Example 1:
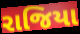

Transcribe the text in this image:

રાજિયા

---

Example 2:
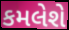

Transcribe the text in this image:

કમલેશે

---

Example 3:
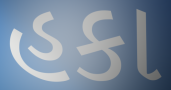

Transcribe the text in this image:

હકા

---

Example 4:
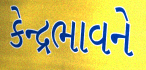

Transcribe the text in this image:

કેન્દ્રભાવને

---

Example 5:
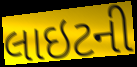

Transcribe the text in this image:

લાઇટની